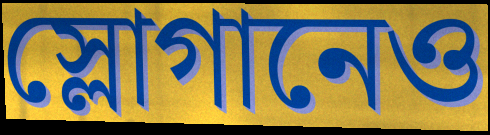
স্লোগানেও